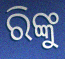
ରିଙ୍କୁ